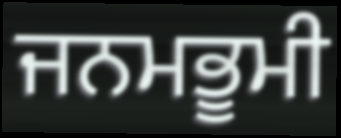
ਜਨਮਭੂਮੀ